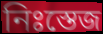
নিঃস্তেজ